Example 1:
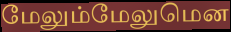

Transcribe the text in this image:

மேலும்மேலுமென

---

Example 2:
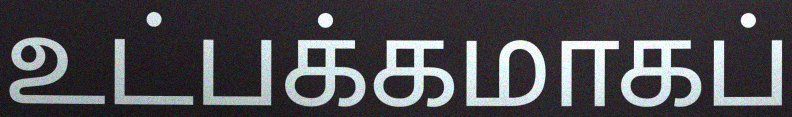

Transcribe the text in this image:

உட்பக்கமாகப்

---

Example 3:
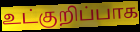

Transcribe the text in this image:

உட்குறிப்பாக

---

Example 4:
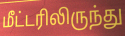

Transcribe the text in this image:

மீட்டரிலிருந்து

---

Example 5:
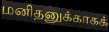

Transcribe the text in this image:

மனிதனுக்காகக்